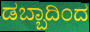
ಡಬ್ಬಾದಿಂದ